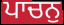
ਪਾਚਨੁ